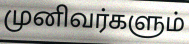
முனிவர்களும்